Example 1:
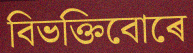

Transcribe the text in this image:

বিভক্তিবোৰে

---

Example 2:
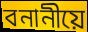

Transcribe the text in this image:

বনানীয়ে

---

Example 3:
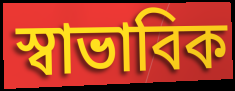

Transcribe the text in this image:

স্বাভাবিক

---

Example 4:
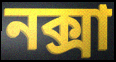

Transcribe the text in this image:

নক্সা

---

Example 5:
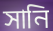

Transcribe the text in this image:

সানি